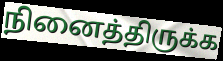
நினைத்திருக்க